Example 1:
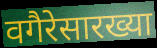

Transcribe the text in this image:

वगैरेसारख्या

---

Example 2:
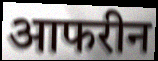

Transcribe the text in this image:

आफरीन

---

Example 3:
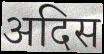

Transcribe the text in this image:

अदिस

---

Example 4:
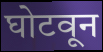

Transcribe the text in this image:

घोटवून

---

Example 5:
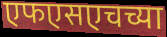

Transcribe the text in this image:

एफएसएचच्या